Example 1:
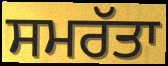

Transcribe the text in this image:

ਸਮਰੱਤਾ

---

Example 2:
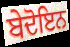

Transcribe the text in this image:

ਬੇਦੋਇਨ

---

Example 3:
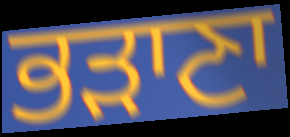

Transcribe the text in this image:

ਭੜਾਣਾ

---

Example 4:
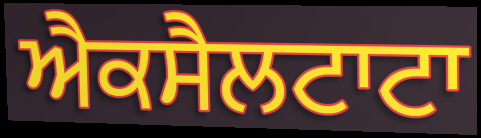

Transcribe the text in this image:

ਐਕਸੈਲਟਾਟਾ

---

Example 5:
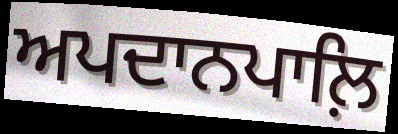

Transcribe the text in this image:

ਅਪਦਾਨਪਾਲ਼ਿ